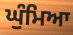
ਘੁੰਮਿਆ